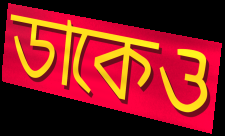
ডাকেও